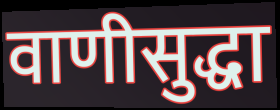
वाणीसुद्धा